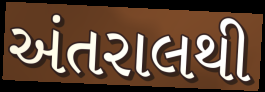
અંતરાલથી